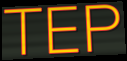
TEP